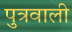
पुत्रवाली